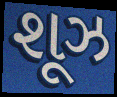
શૂઝ